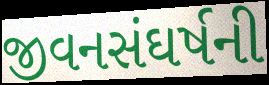
જીવનસંઘર્ષની